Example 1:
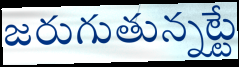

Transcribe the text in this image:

జరుగుతున్నట్టే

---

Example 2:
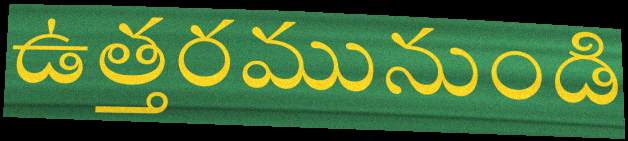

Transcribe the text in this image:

ఉత్తరమునుండి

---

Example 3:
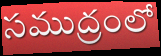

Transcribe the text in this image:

సముద్రంలో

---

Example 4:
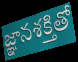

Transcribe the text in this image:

జ్ఞానశక్తితో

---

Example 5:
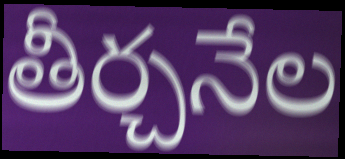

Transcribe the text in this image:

తీర్చనేల